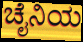
ಚೈನಿಯ